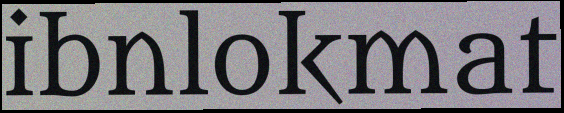
ibnlokmat